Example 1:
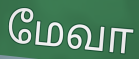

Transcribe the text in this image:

மேவா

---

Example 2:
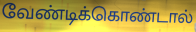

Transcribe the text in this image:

வேண்டிக்கொண்டால்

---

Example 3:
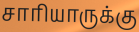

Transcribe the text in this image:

சாரியாருக்கு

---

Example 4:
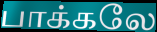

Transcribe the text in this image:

பாக்கலே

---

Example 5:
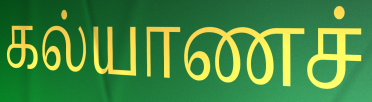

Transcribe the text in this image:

கல்யாணச்